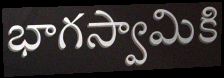
భాగస్వామికి